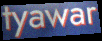
tyawar